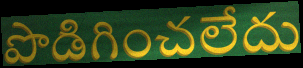
పొడిగించలేదు